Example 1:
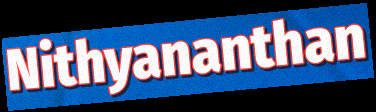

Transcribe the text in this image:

Nithyananthan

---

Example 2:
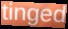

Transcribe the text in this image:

tinged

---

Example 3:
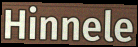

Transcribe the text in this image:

Hinnele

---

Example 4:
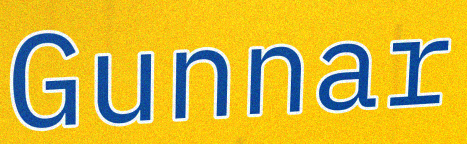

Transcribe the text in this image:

Gunnar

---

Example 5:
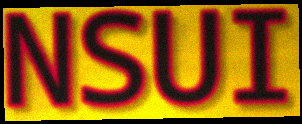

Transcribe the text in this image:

NSUI